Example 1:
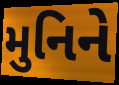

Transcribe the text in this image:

મુનિને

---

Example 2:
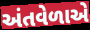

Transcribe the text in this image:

અંતવેળાએ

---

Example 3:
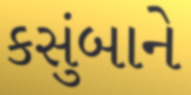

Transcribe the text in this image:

કસુંબાને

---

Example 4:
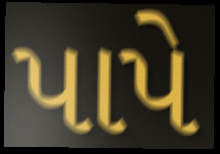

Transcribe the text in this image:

પાપે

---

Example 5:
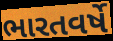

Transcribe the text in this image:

ભારતવર્ષે